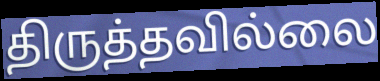
திருத்தவில்லை